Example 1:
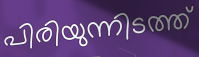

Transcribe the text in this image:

പിരിയുന്നിടത്ത്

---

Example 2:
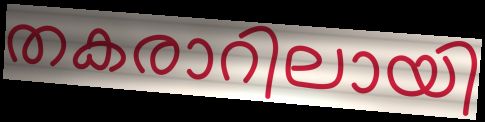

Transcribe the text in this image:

തകരാറിലായി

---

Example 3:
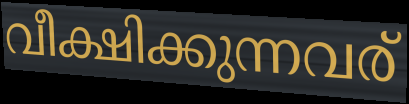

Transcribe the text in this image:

വീക്ഷിക്കുന്നവര്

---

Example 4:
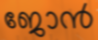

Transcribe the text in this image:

ജോൻ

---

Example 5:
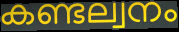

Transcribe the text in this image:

കണ്ടല്വനം